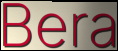
Bera